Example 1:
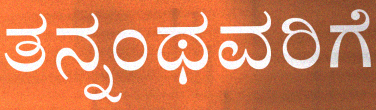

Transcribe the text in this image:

ತನ್ನಂಥವರಿಗೆ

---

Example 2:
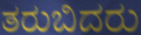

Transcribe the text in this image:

ತರುಬಿದರು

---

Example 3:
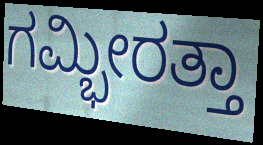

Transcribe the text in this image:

ಗಮ್ಭೀರತ್ತಾ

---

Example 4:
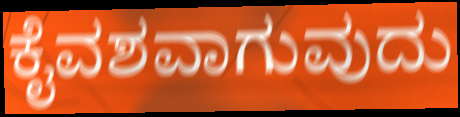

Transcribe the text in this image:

ಕೈವಶವಾಗುವುದು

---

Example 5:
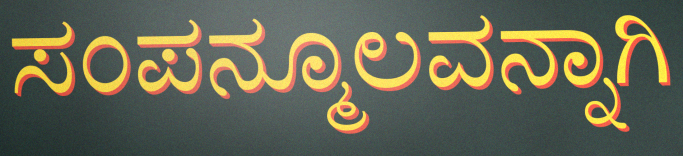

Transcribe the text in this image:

ಸಂಪನ್ಮೂಲವನ್ನಾಗಿ